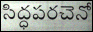
సిద్ధపరచెనో